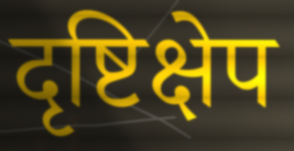
दृष्टिक्षेप